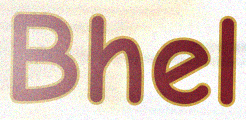
Bhel